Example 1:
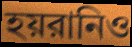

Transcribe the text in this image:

হয়রানিও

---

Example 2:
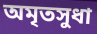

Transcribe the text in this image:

অমৃতসুধা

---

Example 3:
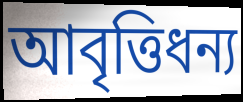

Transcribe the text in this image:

আবৃত্তিধন্য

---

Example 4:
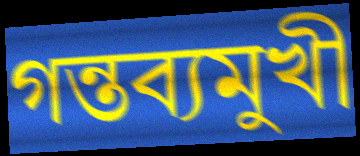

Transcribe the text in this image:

গন্তব্যমুখী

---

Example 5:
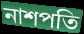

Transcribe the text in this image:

নাশপতি